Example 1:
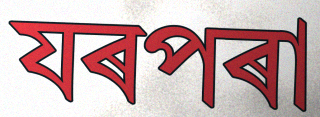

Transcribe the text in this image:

যৰপৰা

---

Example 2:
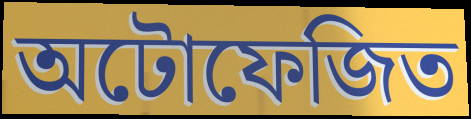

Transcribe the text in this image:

অটোফেজিত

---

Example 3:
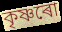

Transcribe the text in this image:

কৃষ্ণৰো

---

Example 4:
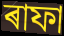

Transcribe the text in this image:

ৰাফা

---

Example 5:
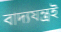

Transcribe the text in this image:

বাদ্যযন্ত্ৰই